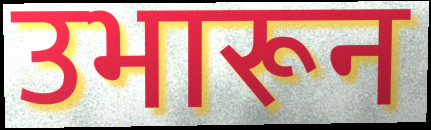
उभारून